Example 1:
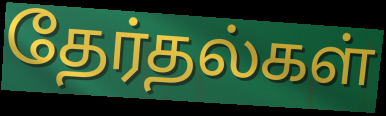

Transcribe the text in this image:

தேர்தல்கள்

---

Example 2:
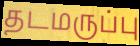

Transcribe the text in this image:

தடமருப்பு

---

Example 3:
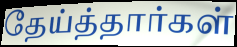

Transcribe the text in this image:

தேய்த்தார்கள்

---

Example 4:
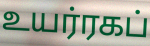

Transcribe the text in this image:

உயர்ரகப்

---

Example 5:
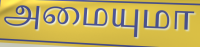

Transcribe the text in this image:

அமையுமா